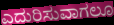
ಎದುರಿಸುವಾಗಲೂ